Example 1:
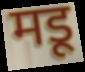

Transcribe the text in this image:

मडू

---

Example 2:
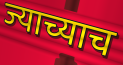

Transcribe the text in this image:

ज्याच्याच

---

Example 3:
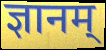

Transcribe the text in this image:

ज्ञानम्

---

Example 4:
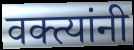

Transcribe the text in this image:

वक्त्यांनी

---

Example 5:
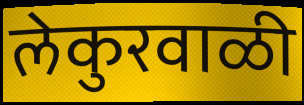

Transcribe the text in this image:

लेकुरवाळी